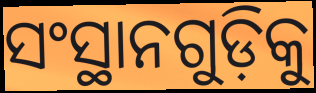
ସଂସ୍ଥାନଗୁଡ଼ିକୁ